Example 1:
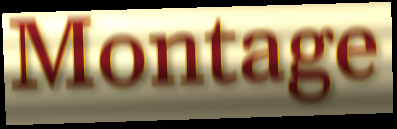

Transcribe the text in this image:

Montage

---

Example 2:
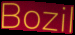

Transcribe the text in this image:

Bozil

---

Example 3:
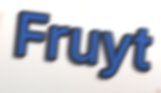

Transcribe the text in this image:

Fruyt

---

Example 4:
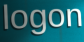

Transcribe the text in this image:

logon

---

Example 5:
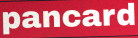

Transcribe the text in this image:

pancard